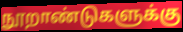
நூறாண்டுகளுக்கு